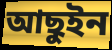
আছুইন